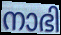
നാഭി